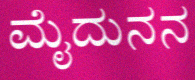
ಮೈದುನನ